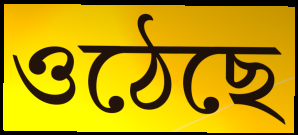
ওঠেছে